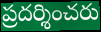
ప్రదర్శించరు